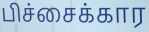
பிச்சைக்கார